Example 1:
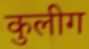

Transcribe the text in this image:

कुलीग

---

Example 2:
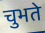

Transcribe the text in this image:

चुभते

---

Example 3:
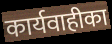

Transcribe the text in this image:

कार्यवाहीका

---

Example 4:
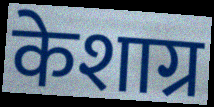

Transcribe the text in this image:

केशाग्र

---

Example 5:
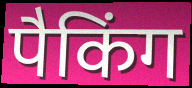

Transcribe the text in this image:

पैकिंग